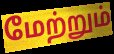
மேற்றும்